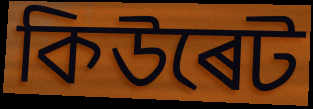
কিউৰেট